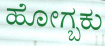
ಹೋಗ್ಬಕು